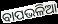
ବାପଭଳିଆ